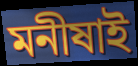
মনীষাই